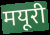
मयूरी